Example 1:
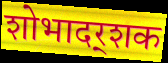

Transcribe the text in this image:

शोभादर्शक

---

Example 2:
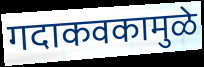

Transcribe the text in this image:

गदाकवकामुळे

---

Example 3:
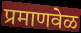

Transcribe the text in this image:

प्रमाणवेळ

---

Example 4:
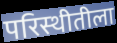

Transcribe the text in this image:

परिस्थीतीला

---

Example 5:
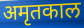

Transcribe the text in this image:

अमृतकाल